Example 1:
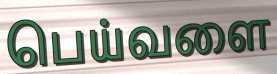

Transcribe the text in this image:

பெய்வளை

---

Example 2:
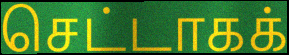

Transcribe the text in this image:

செட்டாகக்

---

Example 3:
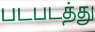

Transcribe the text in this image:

படபடத்து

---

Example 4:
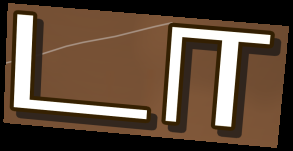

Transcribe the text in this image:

டா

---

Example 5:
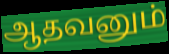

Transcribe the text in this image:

ஆதவனும்